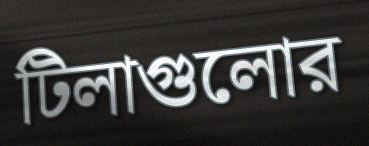
টিলাগুলোর